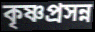
কৃষ্ণপ্রসন্ন